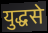
युद्धसे